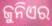
ଜୁନିଏର